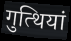
गुत्थियां